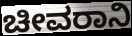
ಚೀವರಾನಿ